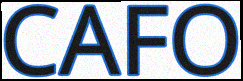
CAFO